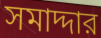
সমাদ্দার